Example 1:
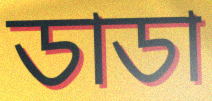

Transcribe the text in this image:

ডাডা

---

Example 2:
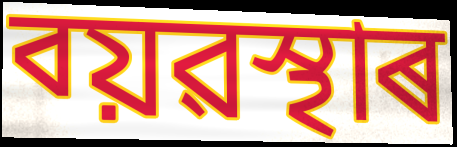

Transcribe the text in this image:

ব্য়ৱস্থাৰ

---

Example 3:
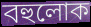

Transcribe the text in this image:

বহুলোক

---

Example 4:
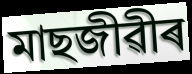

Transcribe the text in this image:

মাছজীৱীৰ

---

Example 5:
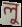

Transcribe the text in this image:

লু